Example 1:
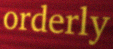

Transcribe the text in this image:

orderly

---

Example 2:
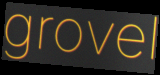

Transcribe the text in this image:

grovel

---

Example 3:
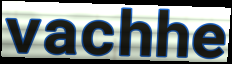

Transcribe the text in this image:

vachhe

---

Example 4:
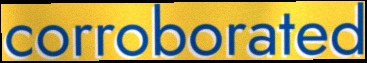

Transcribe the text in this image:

corroborated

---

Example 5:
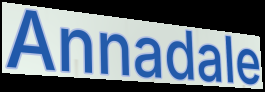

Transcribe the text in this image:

Annadale